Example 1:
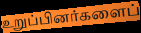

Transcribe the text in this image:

உறுப்பினர்களைப்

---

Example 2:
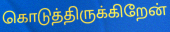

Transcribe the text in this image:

கொடுத்திருக்கிறேன்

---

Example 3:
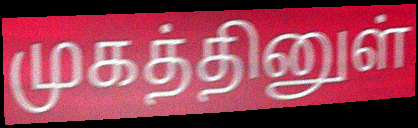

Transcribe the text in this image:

முகத்தினுள்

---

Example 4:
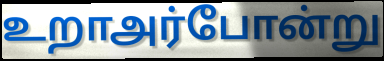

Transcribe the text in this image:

உறாஅர்போன்று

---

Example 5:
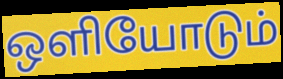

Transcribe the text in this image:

ஒளியோடும்